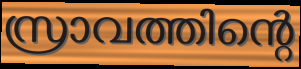
സ്രാവത്തിന്റെ